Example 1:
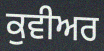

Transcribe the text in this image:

ਕੁਵੀਅਰ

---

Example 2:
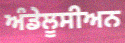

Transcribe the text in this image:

ਅੰਡੇਲੂਸੀਅਨ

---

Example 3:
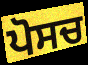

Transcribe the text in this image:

ਪੋਸਚ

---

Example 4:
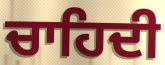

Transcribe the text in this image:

ਚਾਹਿਦੀ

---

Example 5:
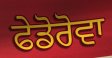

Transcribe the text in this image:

ਫੇਡੋਰੋਵਾ